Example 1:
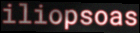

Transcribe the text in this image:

iliopsoas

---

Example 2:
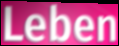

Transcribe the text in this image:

Leben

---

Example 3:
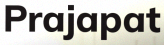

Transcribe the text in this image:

Prajapat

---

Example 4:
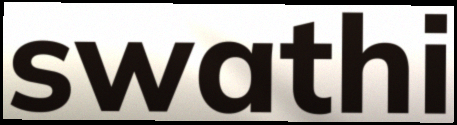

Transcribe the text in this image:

swathi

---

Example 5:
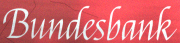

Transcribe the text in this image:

Bundesbank